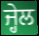
ਜ੍ਹੇਲ